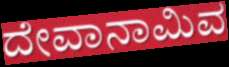
ದೇವಾನಾಮಿವ